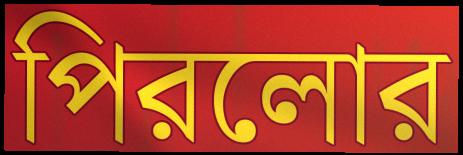
পিরলোর